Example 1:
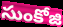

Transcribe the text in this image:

సుంకోజి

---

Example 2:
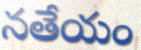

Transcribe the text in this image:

నతేయం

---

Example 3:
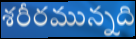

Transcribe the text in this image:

శరీరమున్నది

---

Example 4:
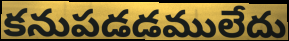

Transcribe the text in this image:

కనుపడడములేదు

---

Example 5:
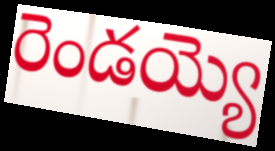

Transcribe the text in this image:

రెండయ్యె